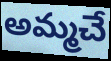
అమ్మచే